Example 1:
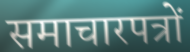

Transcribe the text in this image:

समाचारपत्रों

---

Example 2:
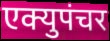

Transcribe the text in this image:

एक्युपंचर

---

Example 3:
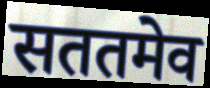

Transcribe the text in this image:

सततमेव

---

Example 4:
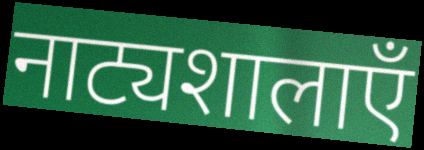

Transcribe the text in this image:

नाट्यशालाएँ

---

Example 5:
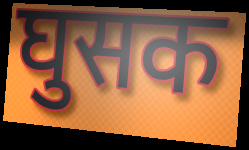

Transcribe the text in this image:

घुसक